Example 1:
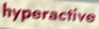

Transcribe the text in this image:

hyperactive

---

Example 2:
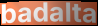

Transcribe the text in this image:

badalta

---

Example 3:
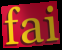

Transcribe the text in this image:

fai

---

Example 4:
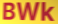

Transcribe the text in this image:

BWk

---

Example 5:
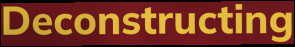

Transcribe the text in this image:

Deconstructing